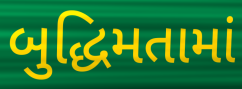
બુદ્ધિમતામાં